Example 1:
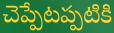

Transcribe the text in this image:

చెప్పేటప్పటికి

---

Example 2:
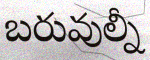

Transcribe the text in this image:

బరువుల్నీ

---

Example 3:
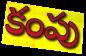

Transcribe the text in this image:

కంపు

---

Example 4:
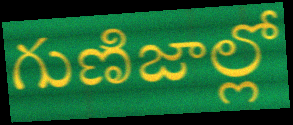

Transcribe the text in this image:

గుణిజాల్లో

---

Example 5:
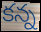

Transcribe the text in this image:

కన్న